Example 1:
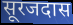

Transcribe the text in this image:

सूरजदास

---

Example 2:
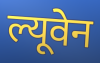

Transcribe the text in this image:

ल्यूवेन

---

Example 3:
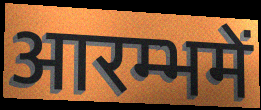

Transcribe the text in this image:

आरम्भमें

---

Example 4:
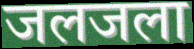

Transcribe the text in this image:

जलजला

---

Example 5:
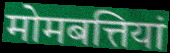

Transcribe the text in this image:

मोमबत्तियां